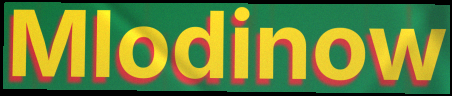
Mlodinow